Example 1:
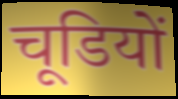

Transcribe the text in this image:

चूडियों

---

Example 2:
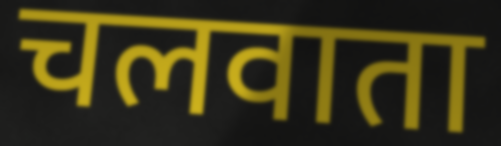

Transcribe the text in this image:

चलवाता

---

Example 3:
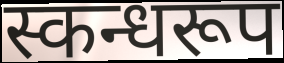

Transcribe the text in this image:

स्कन्धरूप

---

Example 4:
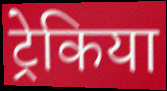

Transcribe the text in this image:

ट्रेकिया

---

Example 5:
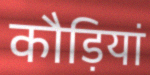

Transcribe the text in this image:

कौड़ियां